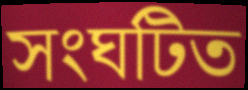
সংঘটিত